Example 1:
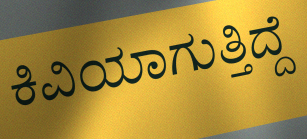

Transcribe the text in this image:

ಕಿವಿಯಾಗುತ್ತಿದ್ದೆ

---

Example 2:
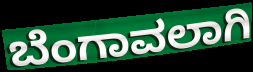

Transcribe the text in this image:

ಬೆಂಗಾವಲಾಗಿ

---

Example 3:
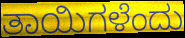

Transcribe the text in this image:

ತಾಯಿಗಳೆಂದು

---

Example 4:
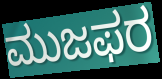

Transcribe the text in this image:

ಮುಜಫರ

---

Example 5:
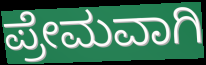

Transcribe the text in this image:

ಪ್ರೇಮವಾಗಿ